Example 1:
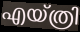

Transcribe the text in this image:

എയ്ത്രി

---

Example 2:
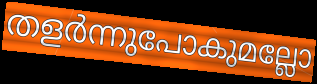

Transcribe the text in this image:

തളർന്നുപോകുമല്ലോ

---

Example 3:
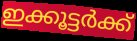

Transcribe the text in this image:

ഇക്കൂട്ടർക്ക്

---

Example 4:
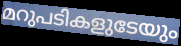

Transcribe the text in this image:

മറുപടികളുടേയും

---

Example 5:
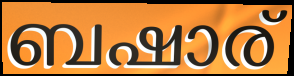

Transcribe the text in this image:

ബഷാര്